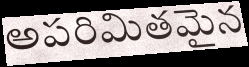
అపరిమితమైన